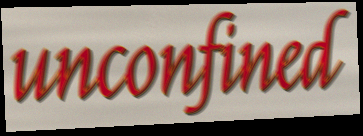
unconfined